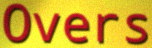
Overs